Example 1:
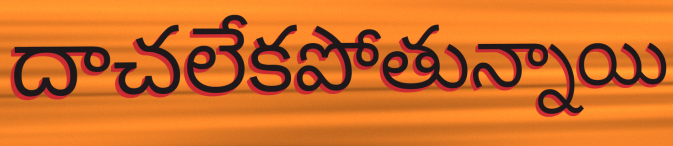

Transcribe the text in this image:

దాచలేకపోతున్నాయి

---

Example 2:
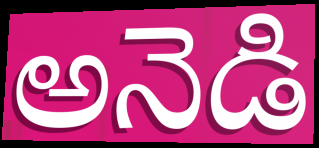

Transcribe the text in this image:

అనెడి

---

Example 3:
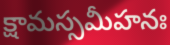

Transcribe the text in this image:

క్షామస్సమీహనః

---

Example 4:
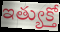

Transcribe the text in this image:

ఇత్యుక్తో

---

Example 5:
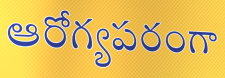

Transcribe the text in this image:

ఆరోగ్యపరంగా